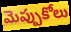
మెప్పుకోలు